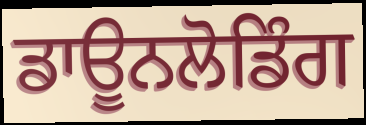
ਡਾਊਨਲੋਡਿੰਗ